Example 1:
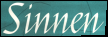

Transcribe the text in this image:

Sinnen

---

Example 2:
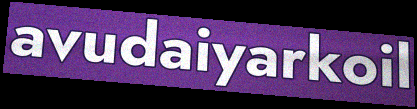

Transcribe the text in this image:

avudaiyarkoil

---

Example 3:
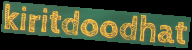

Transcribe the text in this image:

kiritdoodhat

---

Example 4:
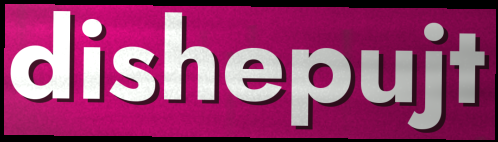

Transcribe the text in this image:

dishepujt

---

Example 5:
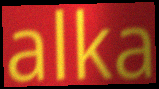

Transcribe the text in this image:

alka